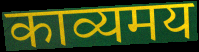
काव्यमय